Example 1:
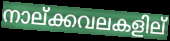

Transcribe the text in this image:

നാല്ക്കവലകളില്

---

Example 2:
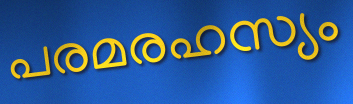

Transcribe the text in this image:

പരമരഹസ്യം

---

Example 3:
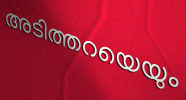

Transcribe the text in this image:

അടിത്തറയെയും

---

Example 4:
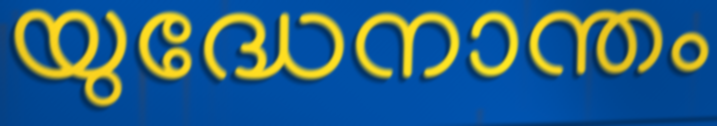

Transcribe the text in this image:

യുദ്ധേനാന്തം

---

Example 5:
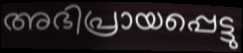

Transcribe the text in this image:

അഭിപ്രായപ്പെട്ടു